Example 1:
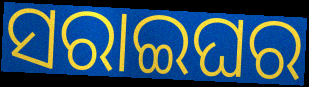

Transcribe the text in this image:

ସରାଇଘର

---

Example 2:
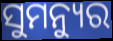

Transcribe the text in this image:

ସୁମନ୍ୟୁର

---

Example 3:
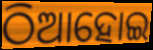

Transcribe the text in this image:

ଠିଆହୋଇ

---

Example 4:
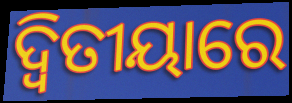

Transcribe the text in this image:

ଦ୍ୱିତୀୟାରେ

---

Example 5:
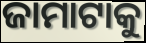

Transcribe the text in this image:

ଜାମାଟାକୁ